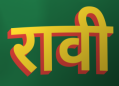
रावी